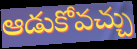
ఆడుకోవచ్చు